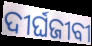
ଦୀର୍ଘଜୀବୀ